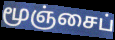
மூஞ்சைப்